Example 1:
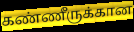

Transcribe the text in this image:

கண்ணீருக்கான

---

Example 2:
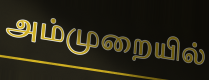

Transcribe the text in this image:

அம்முறையில்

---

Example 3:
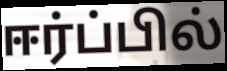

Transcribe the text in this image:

ஈர்ப்பில்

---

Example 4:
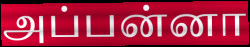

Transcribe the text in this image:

அப்பன்னா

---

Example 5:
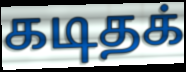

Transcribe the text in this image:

கடிதக்